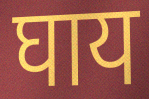
घाय